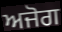
ਅਜੋਗ